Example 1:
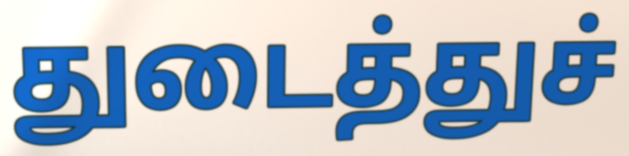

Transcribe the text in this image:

துடைத்துச்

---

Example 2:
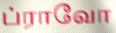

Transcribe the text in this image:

ப்ராவோ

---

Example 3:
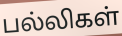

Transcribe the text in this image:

பல்லிகள்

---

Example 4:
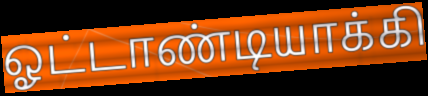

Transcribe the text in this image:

ஓட்டாண்டியாக்கி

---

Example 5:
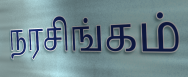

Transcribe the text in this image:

நரசிங்கம்